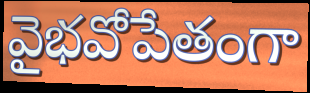
వైభవోపేతంగా